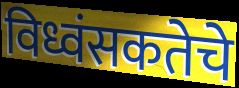
विध्वंसकतेचे